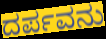
ದರ್ಪವನು